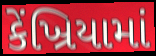
કેંખ્રિયામાં